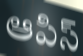
ఆపిస్